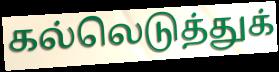
கல்லெடுத்துக்